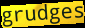
grudges